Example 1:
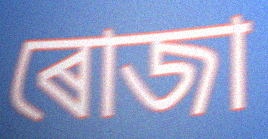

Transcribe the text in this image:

ৰোজা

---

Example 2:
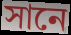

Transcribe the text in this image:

সানে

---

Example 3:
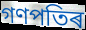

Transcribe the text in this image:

গণপতিৰ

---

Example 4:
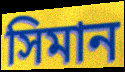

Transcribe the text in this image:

সিমান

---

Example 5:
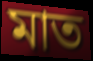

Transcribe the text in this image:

মাত